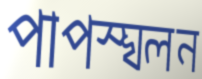
পাপস্খলন